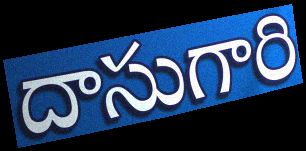
దాసుగారి